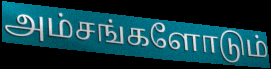
அம்சங்களோடும்